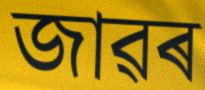
জাৱৰ